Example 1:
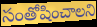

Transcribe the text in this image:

సంతోషించాలని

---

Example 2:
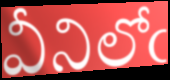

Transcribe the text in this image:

వీనిలోఁ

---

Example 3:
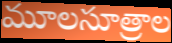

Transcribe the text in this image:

మూలసూత్రాల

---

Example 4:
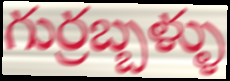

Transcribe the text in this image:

గుర్రబ్బళ్ళు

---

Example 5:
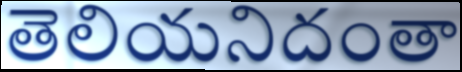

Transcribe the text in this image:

తెలియనిదంతా